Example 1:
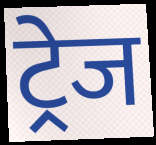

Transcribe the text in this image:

ट्रेज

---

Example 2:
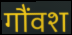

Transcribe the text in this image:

गौंवश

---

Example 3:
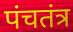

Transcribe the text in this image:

पंचतंत्र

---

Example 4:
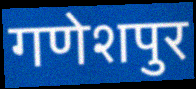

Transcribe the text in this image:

गणेशपुर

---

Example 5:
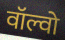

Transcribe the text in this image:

वॉल्‍वो